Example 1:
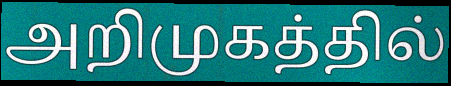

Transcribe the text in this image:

அறிமுகத்தில்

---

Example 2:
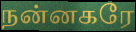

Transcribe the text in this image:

நன்னகரே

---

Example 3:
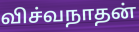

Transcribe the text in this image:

விச்வநாதன்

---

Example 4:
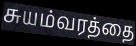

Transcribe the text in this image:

சுயம்வரத்தை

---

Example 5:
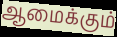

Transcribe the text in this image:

ஆமைக்கும்